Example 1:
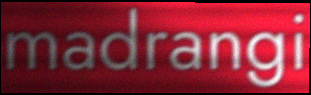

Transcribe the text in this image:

madrangi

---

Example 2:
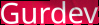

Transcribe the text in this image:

Gurdev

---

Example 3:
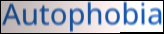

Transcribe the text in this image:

Autophobia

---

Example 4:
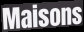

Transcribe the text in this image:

Maisons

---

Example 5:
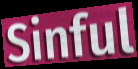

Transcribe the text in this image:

Sinful